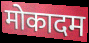
मोकादम